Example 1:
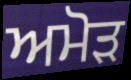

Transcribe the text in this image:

ਅਮੋੜ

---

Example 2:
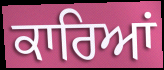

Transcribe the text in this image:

ਕਾਰਿਆਂ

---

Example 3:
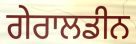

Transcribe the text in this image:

ਗੇਰਾਲਡੀਨ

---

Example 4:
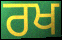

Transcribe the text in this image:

ਰਖ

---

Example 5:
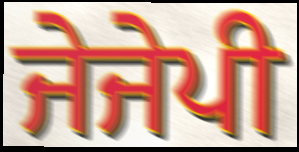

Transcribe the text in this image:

ਜੇਜੇਪੀ